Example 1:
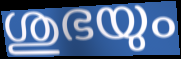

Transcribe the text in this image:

ശുഭയും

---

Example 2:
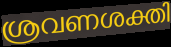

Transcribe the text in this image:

ശ്രവണശക്തി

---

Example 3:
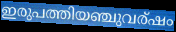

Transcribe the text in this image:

ഇരുപത്തിയഞ്ചുവര്ഷം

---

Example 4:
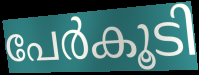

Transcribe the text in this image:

പേർകൂടി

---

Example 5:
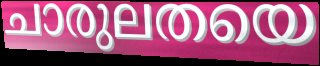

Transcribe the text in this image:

ചാരുലതയെ